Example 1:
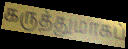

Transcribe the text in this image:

கருத்துமாகப்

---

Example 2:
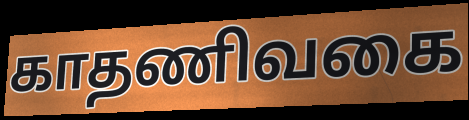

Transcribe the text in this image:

காதணிவகை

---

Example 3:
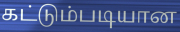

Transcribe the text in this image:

கட்டும்படியான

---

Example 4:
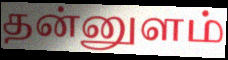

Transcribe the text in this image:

தன்னுளம்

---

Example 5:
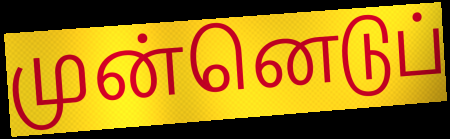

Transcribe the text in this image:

முன்னெடுப்